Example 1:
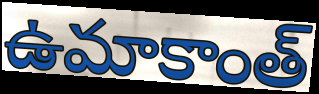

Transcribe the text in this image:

ఉమాకాంత్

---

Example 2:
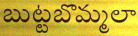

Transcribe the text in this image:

బుట్టబొమ్మలా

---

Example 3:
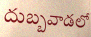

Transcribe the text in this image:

దుబ్బవాడలో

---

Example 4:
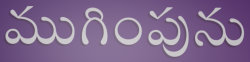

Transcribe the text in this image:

ముగింపును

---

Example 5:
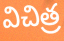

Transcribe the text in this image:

విచిత్ర